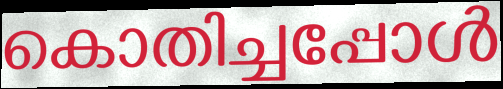
കൊതിച്ചപ്പോൾ